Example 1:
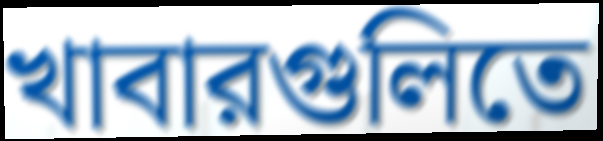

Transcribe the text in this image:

খাবারগুলিতে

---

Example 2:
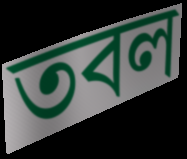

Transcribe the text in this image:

তবল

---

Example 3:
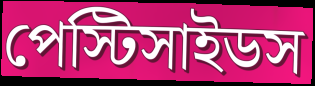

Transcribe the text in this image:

পেস্টিসাইডস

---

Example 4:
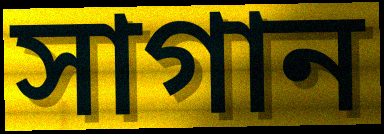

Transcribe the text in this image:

সাগান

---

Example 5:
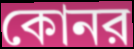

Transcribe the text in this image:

কোনর